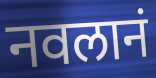
नवलानं